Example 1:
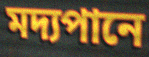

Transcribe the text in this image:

মদ্যপানে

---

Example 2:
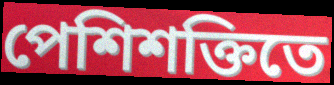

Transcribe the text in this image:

পেশিশক্তিতে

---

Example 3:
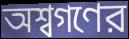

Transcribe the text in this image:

অশ্বগণের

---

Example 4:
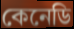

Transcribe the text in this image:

কেনেডি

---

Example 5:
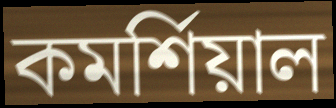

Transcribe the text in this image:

কমর্শিয়াল